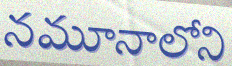
నమూనాలోని